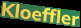
Kloeffler